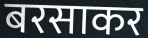
बरसाकर